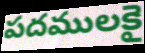
పదములకై